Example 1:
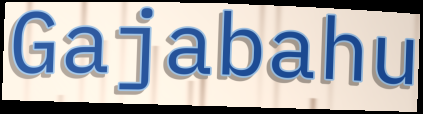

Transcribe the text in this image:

Gajabahu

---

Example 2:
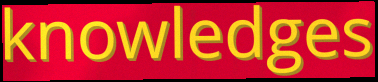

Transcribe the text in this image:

knowledges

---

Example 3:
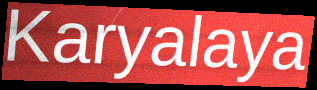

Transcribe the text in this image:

Karyalaya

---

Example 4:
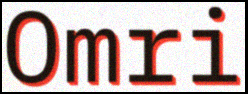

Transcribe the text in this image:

Omri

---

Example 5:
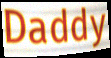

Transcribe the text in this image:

Daddy